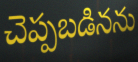
చెప్పబడినను